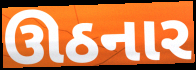
ઊઠનાર